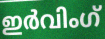
ഇർവിംഗ്